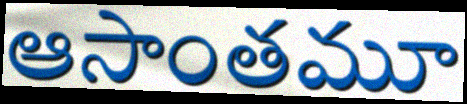
ఆసాంతమూ